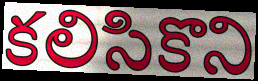
కలిసికొని